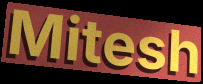
Mitesh